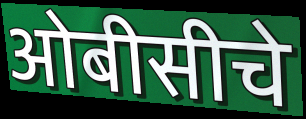
ओबीसीचे